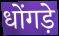
धोंगड़े